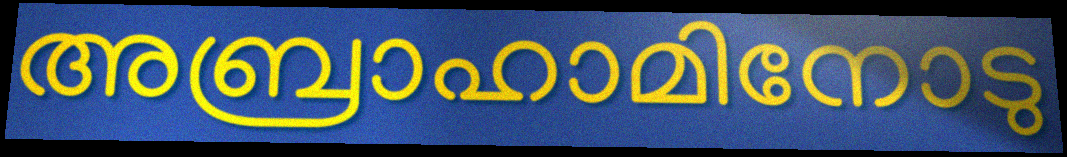
അബ്രാഹാമിനോടു